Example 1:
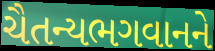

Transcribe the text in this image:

ચૈતન્યભગવાનને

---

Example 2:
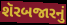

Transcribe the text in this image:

શૅરબજારનું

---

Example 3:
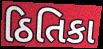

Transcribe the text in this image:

ઠિતિકા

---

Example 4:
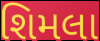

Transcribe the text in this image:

શિમલા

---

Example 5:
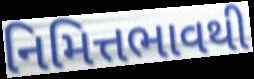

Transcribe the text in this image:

નિમિત્તભાવથી